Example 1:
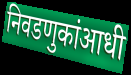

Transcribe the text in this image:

निवडणुकांआधी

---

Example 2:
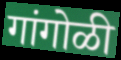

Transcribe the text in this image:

गांगोळी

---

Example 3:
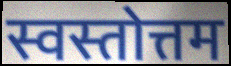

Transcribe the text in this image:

स्वस्तोत्तम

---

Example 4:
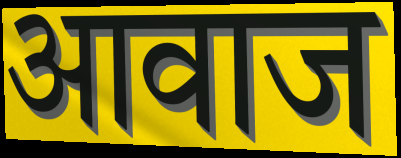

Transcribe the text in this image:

आवाज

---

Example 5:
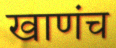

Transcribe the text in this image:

खाणंच